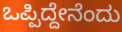
ಒಪ್ಪಿದ್ದೇನೆಂದು